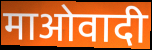
माओवादी